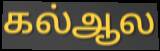
கல்ஆல